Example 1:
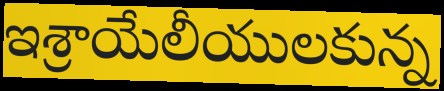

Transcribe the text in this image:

ఇశ్రాయేలీయులకున్న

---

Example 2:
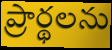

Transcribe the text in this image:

ప్రార్థలను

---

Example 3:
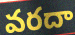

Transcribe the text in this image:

వరదా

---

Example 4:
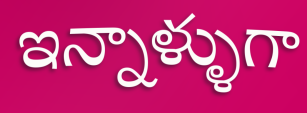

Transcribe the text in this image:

ఇన్నాళ్ళుగా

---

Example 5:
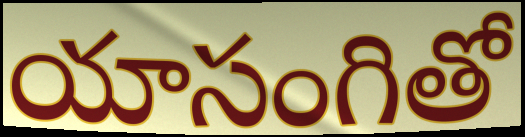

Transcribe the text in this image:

యాసంగితో